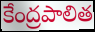
కేంద్రపాలిత